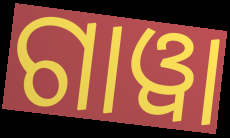
ଗାୱା